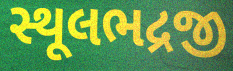
સ્થૂલભદ્રજી